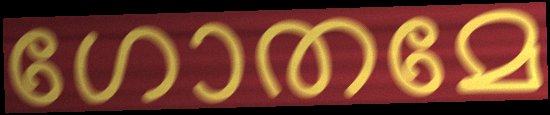
ഗോതമേ